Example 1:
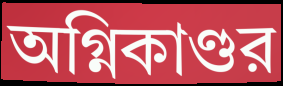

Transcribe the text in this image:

অগ্নিকাণ্ডর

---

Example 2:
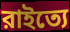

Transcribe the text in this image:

রাইত্যে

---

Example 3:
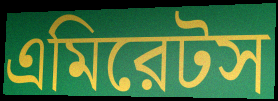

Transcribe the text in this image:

এমিরেটস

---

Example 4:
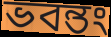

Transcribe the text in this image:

ভবন্তং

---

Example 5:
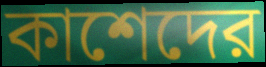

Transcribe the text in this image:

কাশেদের